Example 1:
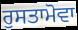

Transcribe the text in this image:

ਰੁਸਤਾਮੋਵਾ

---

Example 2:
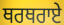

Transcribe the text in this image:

ਥਰਥਰਾਏ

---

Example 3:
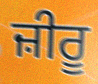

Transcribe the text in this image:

ਜ਼ੀਰੂ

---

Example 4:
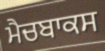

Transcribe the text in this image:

ਮੈਚਬਾਕਸ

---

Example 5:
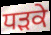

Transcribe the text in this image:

ਧੜਕੇ